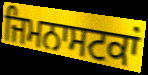
ਜਿਮਨਾਸਟਕਾਂ